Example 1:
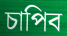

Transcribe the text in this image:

চাপিব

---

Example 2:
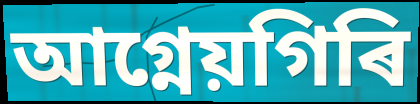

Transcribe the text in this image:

আগ্নেয়গিৰি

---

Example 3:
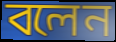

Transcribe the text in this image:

বলেন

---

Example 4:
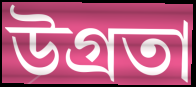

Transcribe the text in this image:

উগ্ৰতা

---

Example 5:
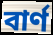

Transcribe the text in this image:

বাৰ্ণ